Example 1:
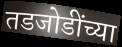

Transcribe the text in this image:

तडजोडींच्या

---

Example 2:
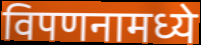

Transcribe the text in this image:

विपणनामध्ये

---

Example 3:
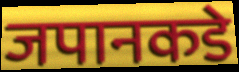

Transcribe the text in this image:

जपानकडे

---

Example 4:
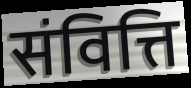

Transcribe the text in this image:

संवित्ति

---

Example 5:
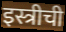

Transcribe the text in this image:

इस्त्रीची